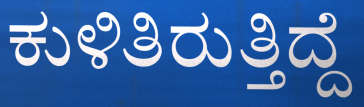
ಕುಳಿತಿರುತ್ತಿದ್ದೆ